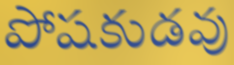
పోషకుడవు